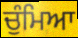
ਚੁੰਮਿਆ